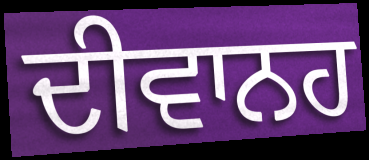
ਦੀਵਾਨਹ